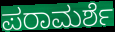
ಪರಾಮರ್ಶೆ